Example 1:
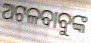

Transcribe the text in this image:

ଅଟଳବାବୁଙ୍କ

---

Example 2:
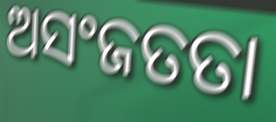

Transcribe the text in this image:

ଅସଂଜତତା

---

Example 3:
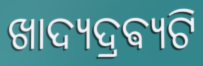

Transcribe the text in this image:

ଖାଦ୍ୟଦ୍ରଵ୍ୟଟି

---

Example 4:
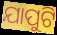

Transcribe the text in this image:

ଯାପୁଟି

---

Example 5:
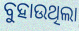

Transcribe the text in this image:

ବୁହାଉଥିଲା